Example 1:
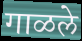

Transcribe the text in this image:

गाळले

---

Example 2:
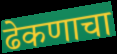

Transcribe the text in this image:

ढेकणाचा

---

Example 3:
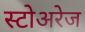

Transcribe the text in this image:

स्टोअरेज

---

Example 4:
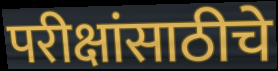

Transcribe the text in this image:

परीक्षांसाठीचे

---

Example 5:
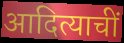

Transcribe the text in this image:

आदित्याचीं